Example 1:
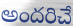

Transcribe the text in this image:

అందరిచే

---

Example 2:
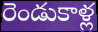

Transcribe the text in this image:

రెండుకాళ్ల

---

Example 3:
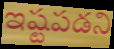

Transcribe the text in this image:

ఇష్టపడని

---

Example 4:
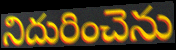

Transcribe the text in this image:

నిదురించెను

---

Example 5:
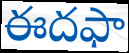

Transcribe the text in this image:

ఈదఫా